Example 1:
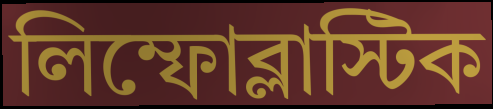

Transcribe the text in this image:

লিম্ফোব্লাস্টিক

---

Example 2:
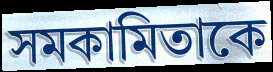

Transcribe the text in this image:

সমকামিতাকে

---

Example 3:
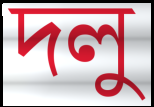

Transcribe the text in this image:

দলু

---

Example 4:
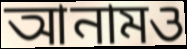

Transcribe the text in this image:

আনামও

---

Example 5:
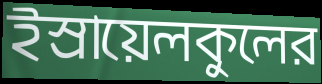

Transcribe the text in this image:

ইস্রায়েলকুলের